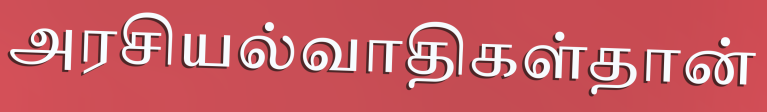
அரசியல்வாதிகள்தான்